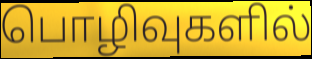
பொழிவுகளில்